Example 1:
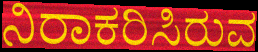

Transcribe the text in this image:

ನಿರಾಕರಿಸಿರುವ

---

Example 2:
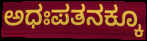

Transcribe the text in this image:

ಅಧಃಪತನಕ್ಕೂ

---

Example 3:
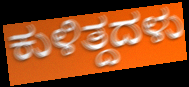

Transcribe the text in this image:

ಕುಳಿತ್ದದಳು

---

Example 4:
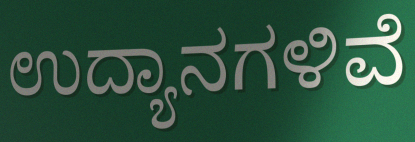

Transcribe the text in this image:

ಉದ್ಯಾನಗಳಿವೆ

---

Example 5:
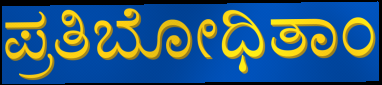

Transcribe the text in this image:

ಪ್ರತಿಬೋಧಿತಾಂ